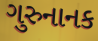
ગુરુનાનક